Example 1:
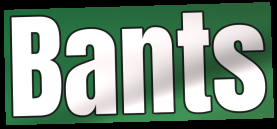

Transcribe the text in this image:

Bants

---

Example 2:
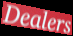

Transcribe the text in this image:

Dealers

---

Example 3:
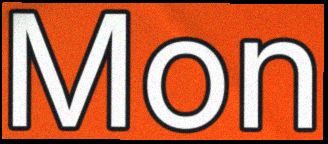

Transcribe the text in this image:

Mon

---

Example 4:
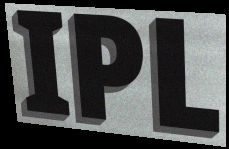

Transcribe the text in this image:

IPL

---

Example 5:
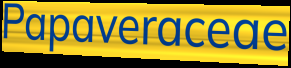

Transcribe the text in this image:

Papaveraceae